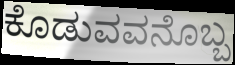
ಕೊಡುವವನೊಬ್ಬ